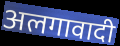
अलगावादी